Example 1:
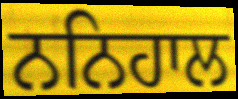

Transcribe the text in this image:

ਨਨਿਹਾਲ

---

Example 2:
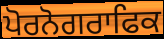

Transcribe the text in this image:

ਪੋਰਨੋਗਰਾਫਿਕ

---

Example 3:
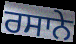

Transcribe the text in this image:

ਰਸਾਨੇ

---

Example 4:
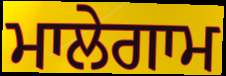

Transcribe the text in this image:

ਮਾਲੇਗਾਮ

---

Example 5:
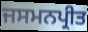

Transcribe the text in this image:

ਜਸਮਨਪ੍ਰੀਤ